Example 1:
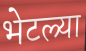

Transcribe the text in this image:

भेटल्या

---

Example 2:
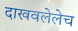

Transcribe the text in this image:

दाखवलेलेच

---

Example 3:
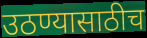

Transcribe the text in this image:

उठण्यासाठीच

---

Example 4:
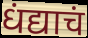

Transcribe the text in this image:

धंद्याचं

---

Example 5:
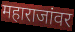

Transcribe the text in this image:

महाराजांवर